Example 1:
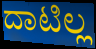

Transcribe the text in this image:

ದಾಟಿಲ್ಲ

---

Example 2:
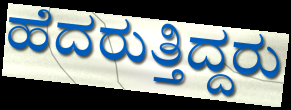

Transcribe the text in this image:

ಹೆದರುತ್ತಿದ್ದರು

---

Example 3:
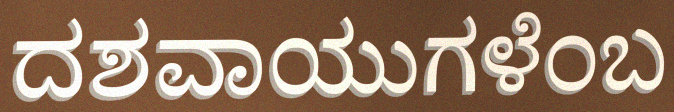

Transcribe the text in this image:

ದಶವಾಯುಗಳೆಂಬ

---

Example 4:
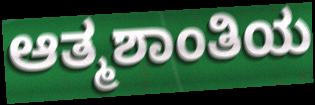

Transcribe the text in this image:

ಆತ್ಮಶಾಂತಿಯ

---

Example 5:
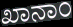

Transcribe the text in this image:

ಖಾನಾಂ